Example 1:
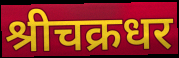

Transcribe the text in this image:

श्रीचक्रधर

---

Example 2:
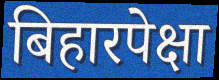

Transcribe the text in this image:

बिहारपेक्षा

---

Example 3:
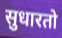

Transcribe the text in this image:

सुधारतो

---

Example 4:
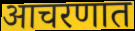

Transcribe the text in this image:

आचरणात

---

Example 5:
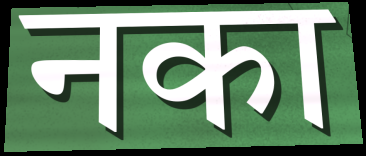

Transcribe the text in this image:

नका